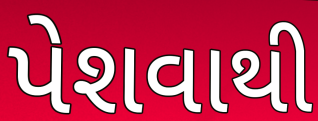
પેશવાથી